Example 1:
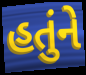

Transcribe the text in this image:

હતુંને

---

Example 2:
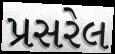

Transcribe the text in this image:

પ્રસરેલ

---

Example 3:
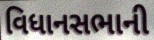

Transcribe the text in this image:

વિધાનસભાની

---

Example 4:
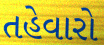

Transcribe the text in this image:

તહેવારો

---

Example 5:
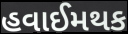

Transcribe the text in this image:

હવાઈમથક